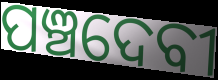
ପଞ୍ଚଦେବୀ